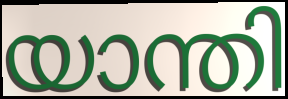
യാന്തി